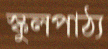
স্কুলপাঠ্য